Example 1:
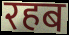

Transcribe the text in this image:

रहब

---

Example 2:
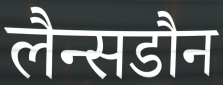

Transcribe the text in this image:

लैन्सडौन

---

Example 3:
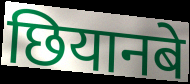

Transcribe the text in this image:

छियानबे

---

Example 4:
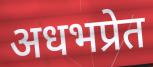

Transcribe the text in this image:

अधभप्रेत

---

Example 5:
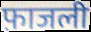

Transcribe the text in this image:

फ़ाजली